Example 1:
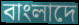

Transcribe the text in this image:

বাংলাদে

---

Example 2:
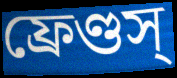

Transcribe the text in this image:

ফ্রেণ্ডস্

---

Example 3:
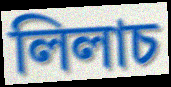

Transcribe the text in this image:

লিলাচ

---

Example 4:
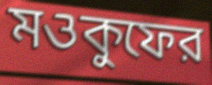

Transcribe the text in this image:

মওকুফের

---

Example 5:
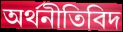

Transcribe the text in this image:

অর্থনীতিবিদ